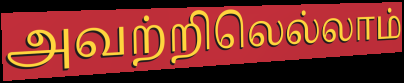
அவற்றிலெல்லாம்